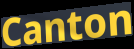
Canton